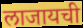
लाजायची